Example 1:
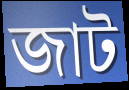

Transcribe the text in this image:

জাট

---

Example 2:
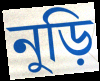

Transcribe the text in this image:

নুড়ি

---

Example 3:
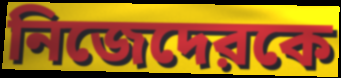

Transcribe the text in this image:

নিজেদেরকে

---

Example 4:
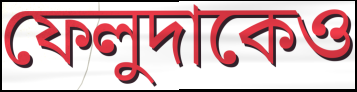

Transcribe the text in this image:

ফেলুদাকেও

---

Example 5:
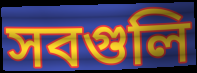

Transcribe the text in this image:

সবগুলি